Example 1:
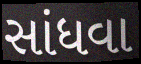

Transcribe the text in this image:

સાંધવા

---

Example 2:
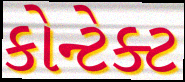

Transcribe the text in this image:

કોન્ટેક્ટ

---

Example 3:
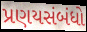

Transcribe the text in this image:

પ્રણયસંબંધો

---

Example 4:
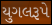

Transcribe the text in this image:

યુગલરૂપે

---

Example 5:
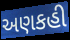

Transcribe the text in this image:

અણકહી